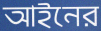
আইনের